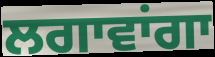
ਲਗਾਵਾਂਗਾ